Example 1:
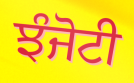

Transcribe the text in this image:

ਝੰਜੋਟੀ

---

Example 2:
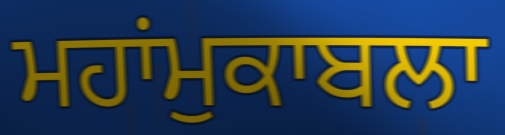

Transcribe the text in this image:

ਮਹਾਂਮੁਕਾਬਲਾ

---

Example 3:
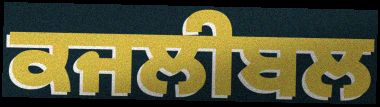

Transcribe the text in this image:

ਕਜਲੀਬਲ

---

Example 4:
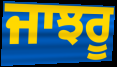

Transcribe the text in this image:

ਜਾਝਰੂ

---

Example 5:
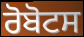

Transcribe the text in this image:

ਰੋਬੋਟਸ